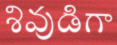
శివుడిగా